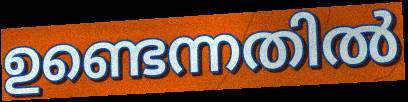
ഉണ്ടെന്നതിൽ